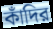
কাঁদির